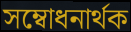
সম্বোধনাৰ্থক